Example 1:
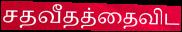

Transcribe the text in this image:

சதவீதத்தைவிட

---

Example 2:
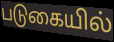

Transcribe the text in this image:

படுகையில்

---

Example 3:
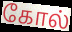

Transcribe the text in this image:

கோல்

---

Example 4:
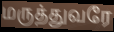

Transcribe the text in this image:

மருத்துவரே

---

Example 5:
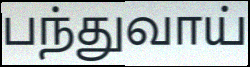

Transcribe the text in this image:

பந்துவாய்